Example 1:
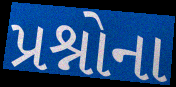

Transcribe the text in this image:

પ્રશ્નોના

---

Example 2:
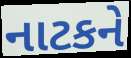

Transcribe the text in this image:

નાટકને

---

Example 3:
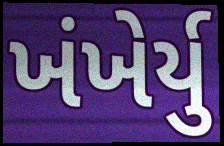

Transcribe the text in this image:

ખંખેર્યુ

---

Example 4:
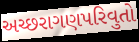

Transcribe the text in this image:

અચ્છરાગણપરિવુતો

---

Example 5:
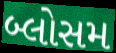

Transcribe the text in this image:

બ્લોસમ